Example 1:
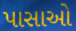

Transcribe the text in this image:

પાસાઓ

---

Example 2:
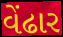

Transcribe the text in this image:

વેંઢાર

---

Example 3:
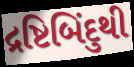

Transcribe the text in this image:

દ્રષ્ટિબિંદુથી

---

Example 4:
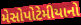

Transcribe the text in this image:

મેસોપોટેમીયાનો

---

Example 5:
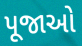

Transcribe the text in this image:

પૂજાઓ